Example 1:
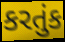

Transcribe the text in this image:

કરતુંક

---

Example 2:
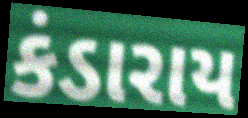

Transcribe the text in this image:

કંડારાય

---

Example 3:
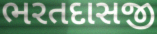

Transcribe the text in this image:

ભરતદાસજી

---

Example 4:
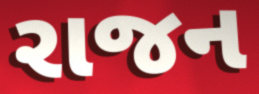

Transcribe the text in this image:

રાજન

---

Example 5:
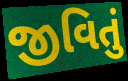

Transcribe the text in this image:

જીવિતું